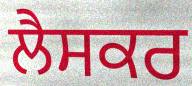
ਲੈਸਕਰ